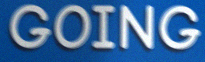
GOING